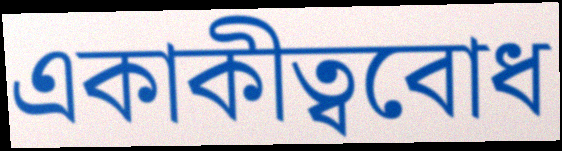
একাকীত্ববোধ